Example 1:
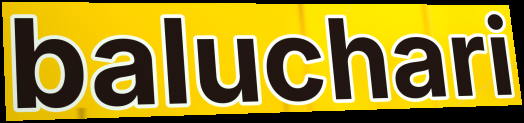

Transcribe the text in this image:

baluchari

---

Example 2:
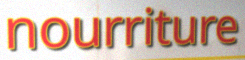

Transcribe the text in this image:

nourriture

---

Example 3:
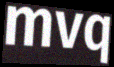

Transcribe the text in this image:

mvq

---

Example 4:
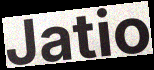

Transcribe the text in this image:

Jatio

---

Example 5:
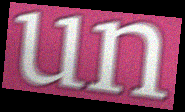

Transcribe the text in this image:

un